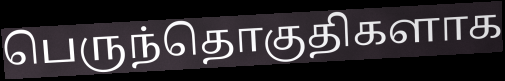
பெருந்தொகுதிகளாக